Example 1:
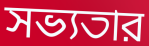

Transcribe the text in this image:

সভ্যতার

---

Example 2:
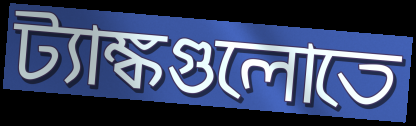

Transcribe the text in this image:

ট্যাঙ্কগুলোতে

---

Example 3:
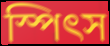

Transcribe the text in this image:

স্পিৎস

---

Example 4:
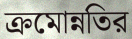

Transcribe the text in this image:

ক্রমোন্নতির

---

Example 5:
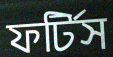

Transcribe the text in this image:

ফর্টিস